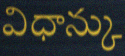
విధాన్కు